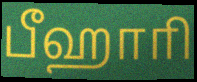
பீஹாரி